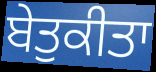
ਬੇਤੁਕੀਤਾ